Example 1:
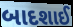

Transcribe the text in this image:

બાદશાઈ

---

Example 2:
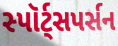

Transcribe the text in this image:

સ્પૉર્ટ્સપર્સન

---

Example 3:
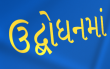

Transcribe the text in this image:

ઉદ્બોધનમાં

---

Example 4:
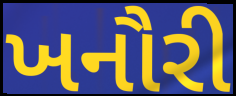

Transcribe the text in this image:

ખનૌરી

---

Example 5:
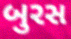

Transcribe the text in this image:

બુરસ